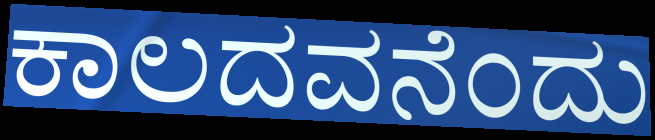
ಕಾಲದವನೆಂದು